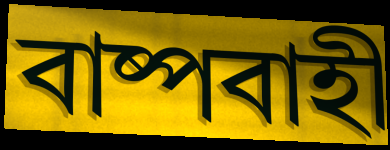
বাষ্পবাহী